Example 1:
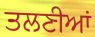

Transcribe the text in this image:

ਤਲਣੀਆਂ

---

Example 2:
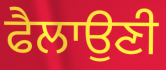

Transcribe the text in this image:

ਫੈਲਾਉਣੀ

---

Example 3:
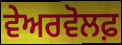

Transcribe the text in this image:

ਵੇਅਰਵੋਲਫ਼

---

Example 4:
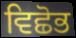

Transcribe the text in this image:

ਵਿਛੋਭ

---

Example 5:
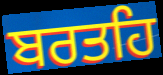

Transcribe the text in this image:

ਬਰਤਹਿ